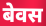
बेवस